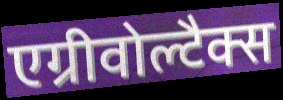
एग्रीवोल्टैक्स